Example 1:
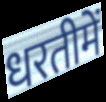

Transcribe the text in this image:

धरतीमें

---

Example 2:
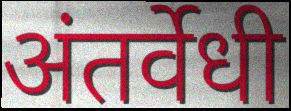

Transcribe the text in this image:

अंतर्वेधी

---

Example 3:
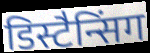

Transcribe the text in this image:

डिस्टैन्सिंग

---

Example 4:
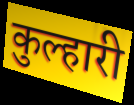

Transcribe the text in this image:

कुल्हारी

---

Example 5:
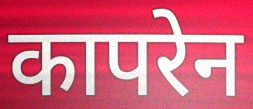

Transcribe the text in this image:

कापरेन